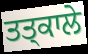
ਤਤ੍ਕਾਲੇ